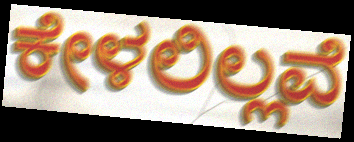
ಕೇಳಲಿಲ್ಲವೆ